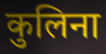
कुलिना